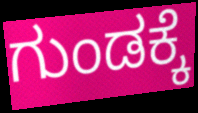
ಗುಂಡಕ್ಕೆ